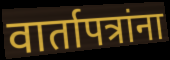
वार्तापत्रांना